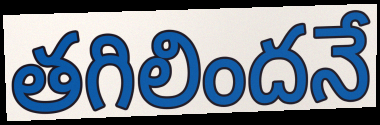
తగిలిందనే